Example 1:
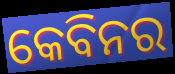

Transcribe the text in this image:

କେବିନର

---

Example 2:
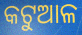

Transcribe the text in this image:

କଟୁଆଳ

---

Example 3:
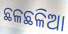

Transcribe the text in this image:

ଛଳଛଳିଆ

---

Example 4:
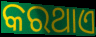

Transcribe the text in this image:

କରଥାଏ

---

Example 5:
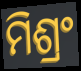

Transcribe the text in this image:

ମିଶ୍ରଂ